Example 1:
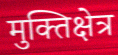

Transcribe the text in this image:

मुक्तिक्षेत्र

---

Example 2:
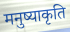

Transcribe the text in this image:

मनुष्याकृति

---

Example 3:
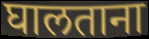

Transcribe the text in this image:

घालताना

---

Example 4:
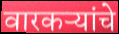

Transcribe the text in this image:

वारकऱ्यांचे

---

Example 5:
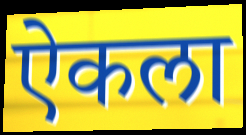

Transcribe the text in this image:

ऐकला